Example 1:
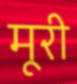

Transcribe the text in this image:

मूरी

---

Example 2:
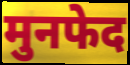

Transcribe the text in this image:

मुनफेद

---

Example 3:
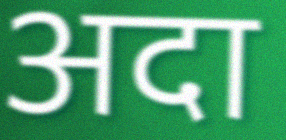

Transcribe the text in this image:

अदा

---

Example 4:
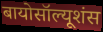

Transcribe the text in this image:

बायोसॉल्यूशंस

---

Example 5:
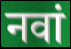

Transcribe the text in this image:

नवां